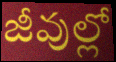
జీవుల్లో